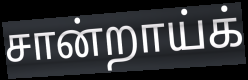
சான்றாய்க்